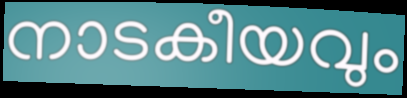
നാടകീയവും